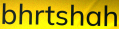
bhrtshah